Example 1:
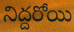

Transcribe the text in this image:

నిద్దరోయి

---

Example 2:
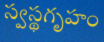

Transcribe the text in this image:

స్వస్థగృహం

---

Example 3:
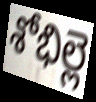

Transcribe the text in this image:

శోభిల్లె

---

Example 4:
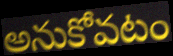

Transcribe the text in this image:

అనుకోవటం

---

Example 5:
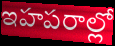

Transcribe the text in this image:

ఇహపరాల్లో